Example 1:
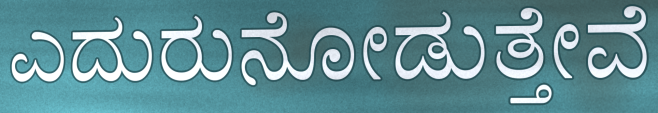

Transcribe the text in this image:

ಎದುರುನೋಡುತ್ತೇವೆ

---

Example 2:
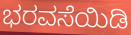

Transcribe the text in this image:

ಭರವಸೆಯಿಡಿ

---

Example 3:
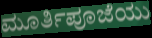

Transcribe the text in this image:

ಮೂರ್ತಿಪೂಜೆಯು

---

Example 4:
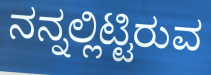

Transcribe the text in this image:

ನನ್ನಲ್ಲಿಟ್ಟಿರುವ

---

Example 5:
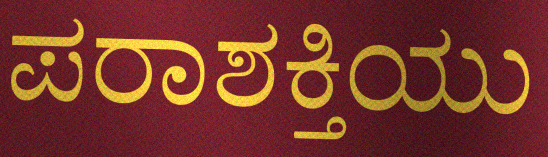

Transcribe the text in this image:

ಪರಾಶಕ್ತಿಯು